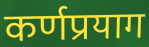
कर्णप्रयाग